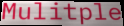
Mulitple